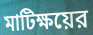
মাটিক্ষয়ের